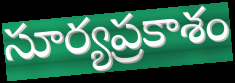
సూర్యప్రకాశం